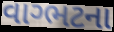
વાગ્ભટના